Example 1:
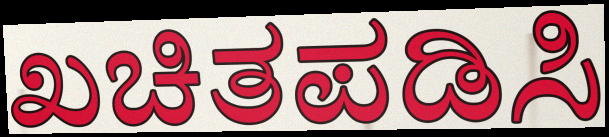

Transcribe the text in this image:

ಖಚಿತಪಡಿಸಿ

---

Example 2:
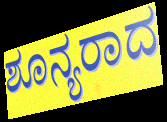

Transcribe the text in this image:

ಶೂನ್ಯರಾದ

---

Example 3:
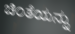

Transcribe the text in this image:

ಚಿಂತೆಯನ್ನು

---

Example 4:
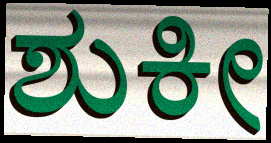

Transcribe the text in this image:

ಶುಕೀ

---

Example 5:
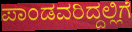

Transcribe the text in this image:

ಪಾಂಡವರಿದ್ದಲ್ಲಿಗೆ